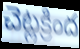
చెట్లక్రింద